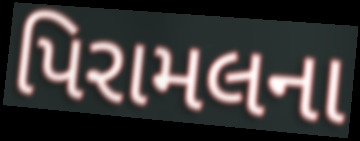
પિરામલના